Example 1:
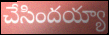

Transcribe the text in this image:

చేసిందయ్యా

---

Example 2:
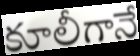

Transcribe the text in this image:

కూలీగానే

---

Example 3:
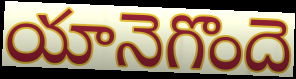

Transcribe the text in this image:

యానెగొందె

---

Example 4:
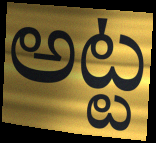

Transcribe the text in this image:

అట్ట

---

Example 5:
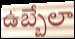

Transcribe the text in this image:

ఉబ్బేలా